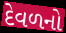
દેવળનો